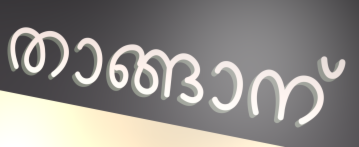
താങ്ങാന്